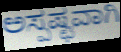
ಅಸ್ಪಷ್ಟವಾಗಿ